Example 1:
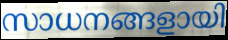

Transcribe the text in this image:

സാധനങ്ങളായി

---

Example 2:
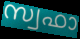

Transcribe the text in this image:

സ്വഫാ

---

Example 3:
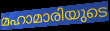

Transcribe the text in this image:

മഹാമാരിയുടെ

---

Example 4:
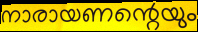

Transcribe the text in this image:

നാരായണന്റെയും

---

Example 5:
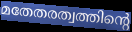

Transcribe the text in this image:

മതേതരത്വത്തിന്റെ